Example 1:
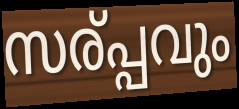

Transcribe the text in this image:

സര്പ്പവും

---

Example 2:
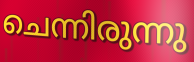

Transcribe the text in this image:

ചെന്നിരുന്നു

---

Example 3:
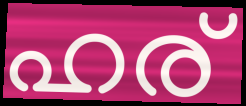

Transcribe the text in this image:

ഹര്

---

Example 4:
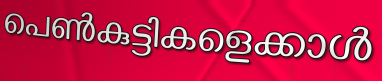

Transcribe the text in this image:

പെൺകുട്ടികളെക്കാൾ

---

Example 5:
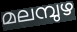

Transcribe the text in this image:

മലമ്പുഴ